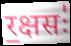
र॒क्षसः॑